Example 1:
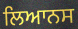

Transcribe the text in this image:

ਲਿਆਨਸ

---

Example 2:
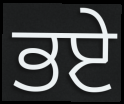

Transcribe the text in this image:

ਭਏ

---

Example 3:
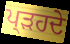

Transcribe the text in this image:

ਪ੍ੜਹਦੇ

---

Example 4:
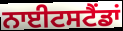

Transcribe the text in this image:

ਨਾਈਟਸਟੈਂਡਾਂ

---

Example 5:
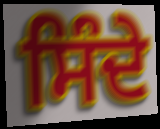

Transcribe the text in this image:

ਸਿੰਦੇ